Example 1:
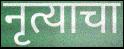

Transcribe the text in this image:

नृत्याचा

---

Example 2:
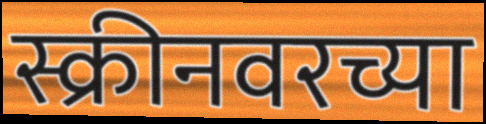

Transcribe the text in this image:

स्क्रीनवरच्या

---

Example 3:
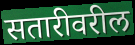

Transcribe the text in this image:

सतारीवरील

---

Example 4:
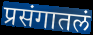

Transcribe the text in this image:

प्रसंगातलं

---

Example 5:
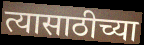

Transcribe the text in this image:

त्यासाठीच्या